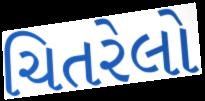
ચિતરેલો